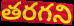
తరగని